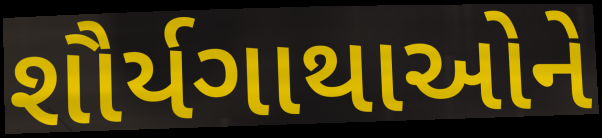
શૌર્યગાથાઓને